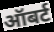
ऑबर्ट